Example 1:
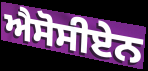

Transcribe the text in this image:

ਐਸੋਸੀਏਨ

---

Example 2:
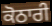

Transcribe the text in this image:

ਕੋਠਾਰੀ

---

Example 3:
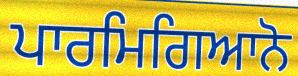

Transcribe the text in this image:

ਪਾਰਮਿਗਿਆਨੋ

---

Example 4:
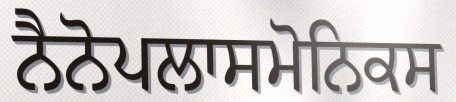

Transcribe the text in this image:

ਨੈਨੋਪਲਾਸਮੋਨਿਕਸ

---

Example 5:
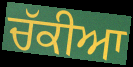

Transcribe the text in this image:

ਚੱਕੀਆ